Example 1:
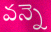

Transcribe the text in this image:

వన్నె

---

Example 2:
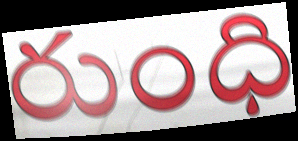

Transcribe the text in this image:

రుంధి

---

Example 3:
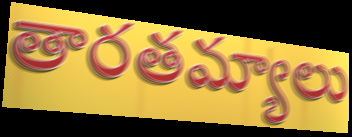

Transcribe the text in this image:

తారతమ్యాలు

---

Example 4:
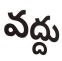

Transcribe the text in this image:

వద్దు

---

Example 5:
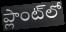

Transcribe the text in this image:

ప్లాంట్‌లో